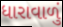
ધારાવાળું